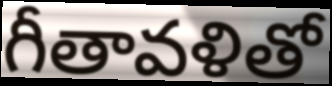
గీతావళితో